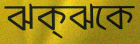
ঝক্‌ঝকে